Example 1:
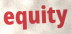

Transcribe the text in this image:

equity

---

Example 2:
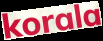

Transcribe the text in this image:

korala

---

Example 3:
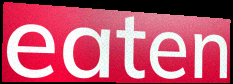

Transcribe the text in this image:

eaten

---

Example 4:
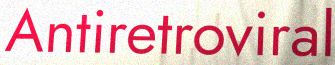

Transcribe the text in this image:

Antiretroviral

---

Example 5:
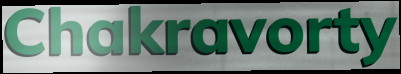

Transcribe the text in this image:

Chakravorty